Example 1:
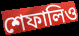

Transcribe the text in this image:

শেফালিও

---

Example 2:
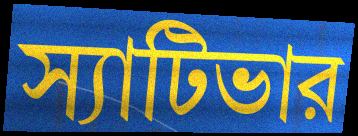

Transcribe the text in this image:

স্যাটিভার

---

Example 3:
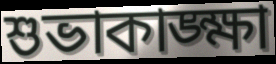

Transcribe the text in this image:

শুভাকাঙ্ক্ষা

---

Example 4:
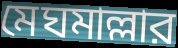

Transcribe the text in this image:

মেঘমাল্লার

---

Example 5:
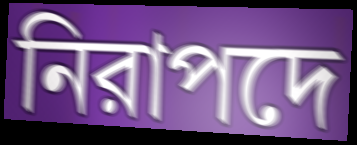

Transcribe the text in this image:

নিরাপদে